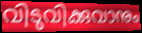
വിടുവിക്കുവാനും